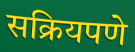
सक्रियपणे